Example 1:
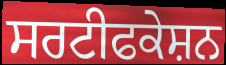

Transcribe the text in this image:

ਸਰਟੀਫਕੇਸ਼ਨ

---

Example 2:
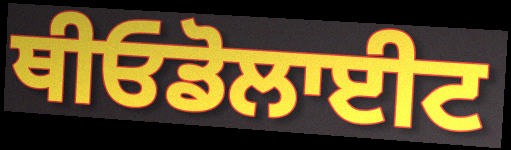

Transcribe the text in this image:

ਥੀਓਡੋਲਾਈਟ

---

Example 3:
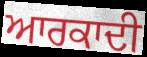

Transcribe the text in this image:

ਆਰਕਾਦੀ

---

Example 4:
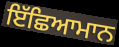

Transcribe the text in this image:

ਇੱਛਿਆਮਾਨ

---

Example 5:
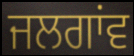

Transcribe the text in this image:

ਜਲਗਾਂਵ